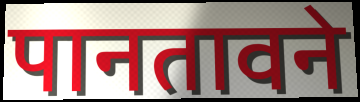
पानतावने